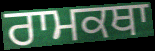
ਰਾਮਕਥਾ